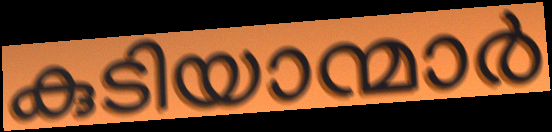
കുടിയാന്മാർ